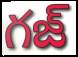
గజ్